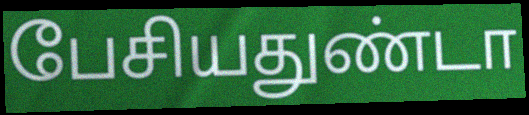
பேசியதுண்டா